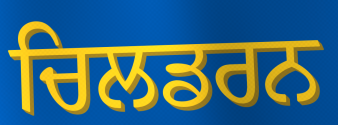
ਚਿਲਡਰਨ